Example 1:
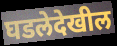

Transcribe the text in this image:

घडलेदेखील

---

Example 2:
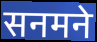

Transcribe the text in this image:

सनमने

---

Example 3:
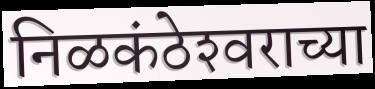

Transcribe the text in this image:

निळकंठेश्वराच्या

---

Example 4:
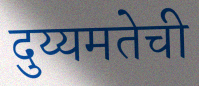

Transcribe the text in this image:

दुय्यमतेची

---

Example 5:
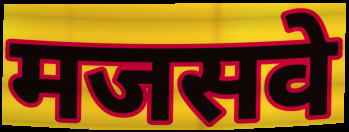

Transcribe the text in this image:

मजसवे